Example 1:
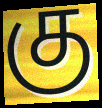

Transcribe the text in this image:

கு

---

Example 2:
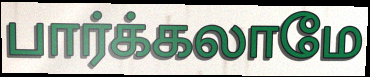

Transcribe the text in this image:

பார்க்கலாமே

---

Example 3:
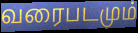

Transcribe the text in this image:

வரைபடமும்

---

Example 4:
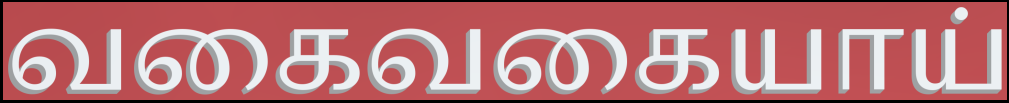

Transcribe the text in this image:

வகைவகையாய்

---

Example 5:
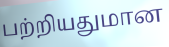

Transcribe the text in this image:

பற்றியதுமான